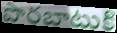
పొరబాటుకి